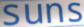
suns